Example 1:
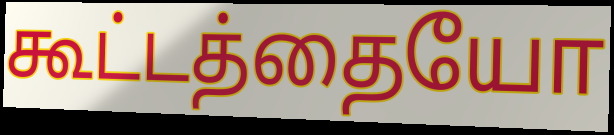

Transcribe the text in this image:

கூட்டத்தையோ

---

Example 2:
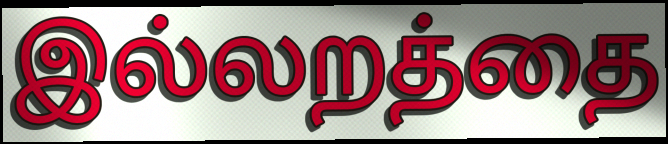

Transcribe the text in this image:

இல்லறத்தை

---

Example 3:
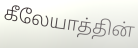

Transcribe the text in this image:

கீலேயாத்தின்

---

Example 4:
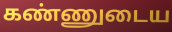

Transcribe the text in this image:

கண்ணுடைய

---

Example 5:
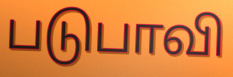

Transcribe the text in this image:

படுபாவி